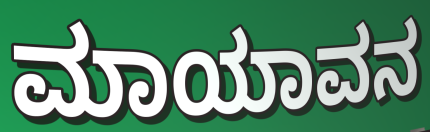
ಮಾಯಾವನ